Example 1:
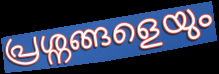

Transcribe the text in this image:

പ്രശ്നങ്ങളെയും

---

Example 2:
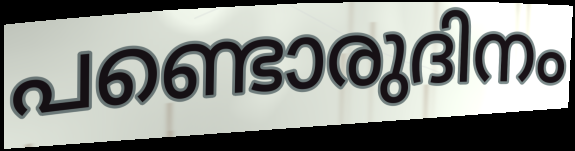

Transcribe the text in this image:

പണ്ടൊരുദിനം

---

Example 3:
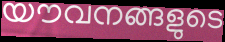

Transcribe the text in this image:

യൗവനങ്ങളുടെ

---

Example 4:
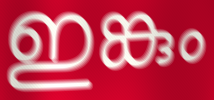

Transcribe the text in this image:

ഇങ്കും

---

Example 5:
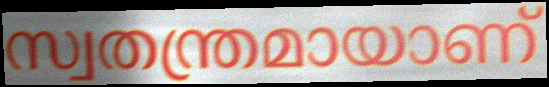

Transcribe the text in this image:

സ്വതന്ത്രമായാണ്